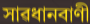
সাৱধানবাণী